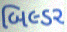
બિલ્ડર